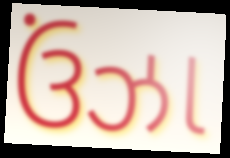
ઉંઝા